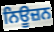
ਨਿਊਜ਼ਨ